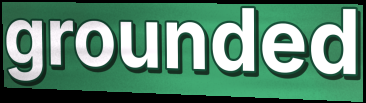
grounded